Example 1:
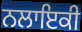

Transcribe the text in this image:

ਨਲਾਇਕੀ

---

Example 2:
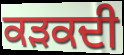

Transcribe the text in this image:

ਕੜਕਦੀ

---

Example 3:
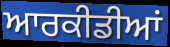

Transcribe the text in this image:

ਆਰਕੀਡੀਆਂ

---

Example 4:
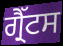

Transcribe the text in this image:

ਗ੍ਰੈੱਟਸ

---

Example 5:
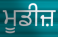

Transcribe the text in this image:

ਮੂਡੀਜ਼